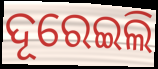
ଦୂରେଇଲି